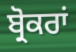
ਬ੍ਰੋਕਰਾਂ